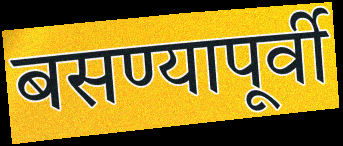
बसण्यापूर्वी